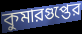
কুমারগুপ্তের